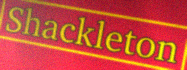
Shackleton